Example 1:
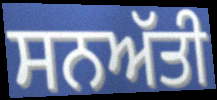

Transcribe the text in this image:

ਸਨਅੱਤੀ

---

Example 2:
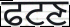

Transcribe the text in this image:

ਫਟਣ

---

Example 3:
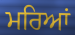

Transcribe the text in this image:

ਮਰਿਆਂ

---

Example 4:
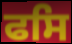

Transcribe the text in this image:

ਫਸਿ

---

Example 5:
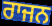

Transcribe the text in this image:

ਰਾਜਨ